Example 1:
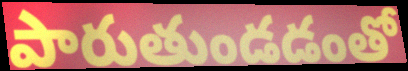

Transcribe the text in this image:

పారుతుండడంతో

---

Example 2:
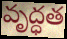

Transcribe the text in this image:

వృద్ధత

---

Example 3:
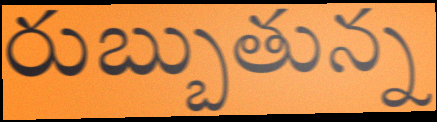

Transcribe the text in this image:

రుబ్బుతున్న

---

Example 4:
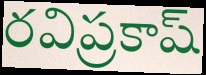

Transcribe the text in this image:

రవిప్రకాష్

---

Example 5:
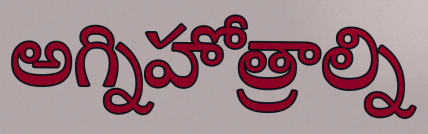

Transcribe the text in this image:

అగ్నిహోత్రాల్ని